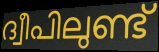
ദ്വീപിലുണ്ട്